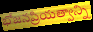
భోజనప్రియత్వాన్ని